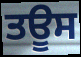
ਤਊਸ